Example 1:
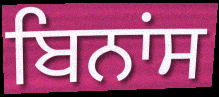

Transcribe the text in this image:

ਬਿਨਾਂਸ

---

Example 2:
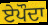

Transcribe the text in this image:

ਏਪੌਦਾ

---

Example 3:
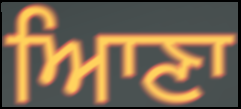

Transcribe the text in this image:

ਆਿਣਾ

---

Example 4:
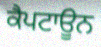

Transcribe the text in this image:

ਕੈਪਟਾਊਨ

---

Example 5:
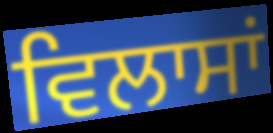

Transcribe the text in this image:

ਵਿਲਾਸਾਂ